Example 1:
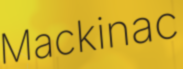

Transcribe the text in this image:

Mackinac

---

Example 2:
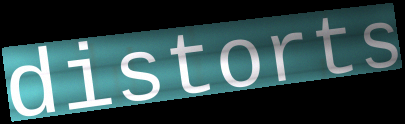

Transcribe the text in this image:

distorts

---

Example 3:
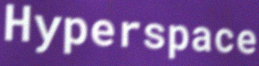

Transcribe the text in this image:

Hyperspace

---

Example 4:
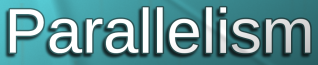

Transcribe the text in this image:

Parallelism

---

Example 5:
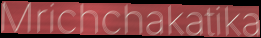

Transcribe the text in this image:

Mrichchakatika